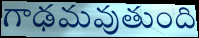
గాఢమవుతుంది